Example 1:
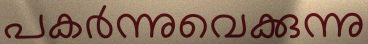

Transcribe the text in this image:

പകർന്നുവെക്കുന്നു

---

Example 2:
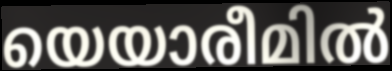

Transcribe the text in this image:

യെയാരീമിൽ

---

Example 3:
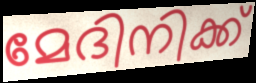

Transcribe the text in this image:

മേദിനിക്ക്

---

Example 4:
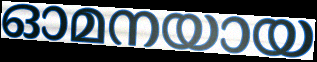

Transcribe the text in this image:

ഓമനയായ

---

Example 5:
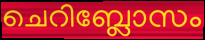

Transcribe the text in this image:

ചെറിബ്ലോസം